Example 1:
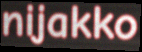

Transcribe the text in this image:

nijakko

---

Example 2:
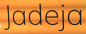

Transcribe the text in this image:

Jadeja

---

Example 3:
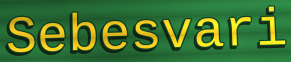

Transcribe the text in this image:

Sebesvari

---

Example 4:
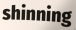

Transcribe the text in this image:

shinning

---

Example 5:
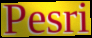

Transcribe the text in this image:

Pesri